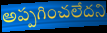
అప్పగించలేదని